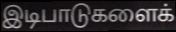
இடிபாடுகளைக்